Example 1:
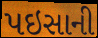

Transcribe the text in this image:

પઇસાની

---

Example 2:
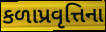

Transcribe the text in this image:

કળાપ્રવૃત્તિના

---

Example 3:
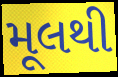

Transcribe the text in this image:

મૂલથી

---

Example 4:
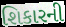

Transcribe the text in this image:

શિકારની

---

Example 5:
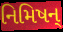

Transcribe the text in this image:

નિમિષન્